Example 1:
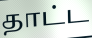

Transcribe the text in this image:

தாட்ட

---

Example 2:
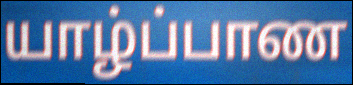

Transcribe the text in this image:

யாழ்ப்பாண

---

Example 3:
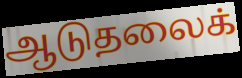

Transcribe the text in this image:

ஆடுதலைக்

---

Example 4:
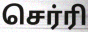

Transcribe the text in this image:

செர்ரி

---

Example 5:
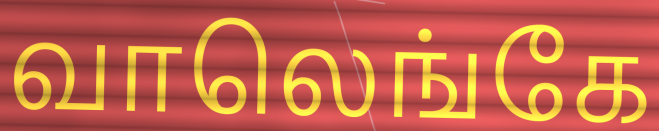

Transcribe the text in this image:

வாலெங்கே